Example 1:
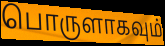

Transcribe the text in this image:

பொருளாகவும்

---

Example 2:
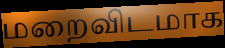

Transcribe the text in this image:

மறைவிடமாக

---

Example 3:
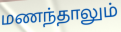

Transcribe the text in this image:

மணந்தாலும்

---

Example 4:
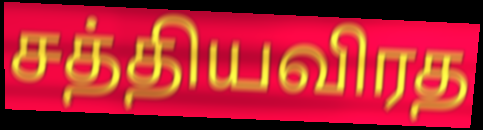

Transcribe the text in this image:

சத்தியவிரத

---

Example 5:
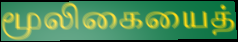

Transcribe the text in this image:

மூலிகையைத்